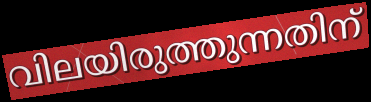
വിലയിരുത്തുന്നതിന്